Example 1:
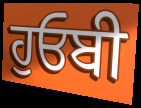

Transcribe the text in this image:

ਹੁਓਬੀ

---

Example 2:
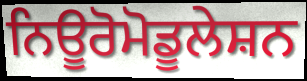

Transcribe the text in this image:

ਨਿਊਰੋਮੋਡੂਲੇਸ਼ਨ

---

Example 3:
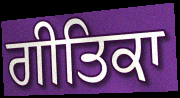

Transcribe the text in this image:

ਗੀਤਿਕਾ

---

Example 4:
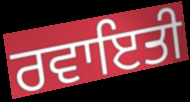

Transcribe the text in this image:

ਰਵਾਇਤੀ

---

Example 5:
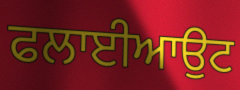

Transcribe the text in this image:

ਫਲਾਈਆਉਟ